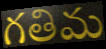
గతిమ